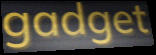
gadget